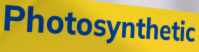
Photosynthetic